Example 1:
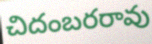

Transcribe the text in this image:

చిదంబరరావు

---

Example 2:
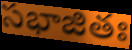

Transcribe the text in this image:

సభాజితః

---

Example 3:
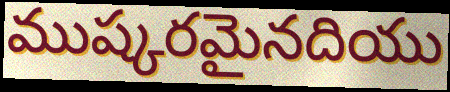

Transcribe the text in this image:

ముష్కరమైనదియు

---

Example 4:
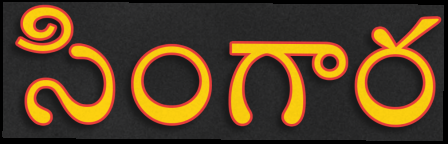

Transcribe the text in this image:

సింగార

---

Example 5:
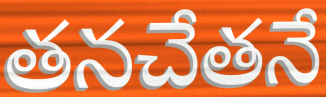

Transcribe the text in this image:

తనచేతనే